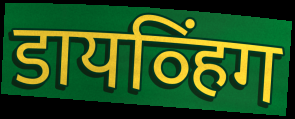
डायव्हिंग